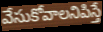
వేసుకోవాలనిపిస్తే